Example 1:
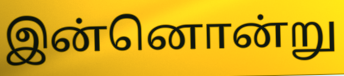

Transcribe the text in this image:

இன்னொன்று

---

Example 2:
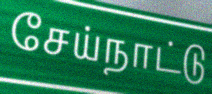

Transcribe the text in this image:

சேய்நாட்டு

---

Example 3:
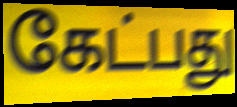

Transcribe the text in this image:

கேட்பது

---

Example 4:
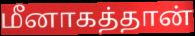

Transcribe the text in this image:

மீனாகத்தான்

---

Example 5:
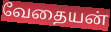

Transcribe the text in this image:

வேதையன்